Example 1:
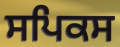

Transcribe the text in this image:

ਸਪਿਕਸ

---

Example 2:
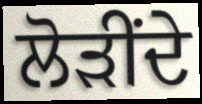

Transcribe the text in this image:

ਲੋੜੀਂਦੇ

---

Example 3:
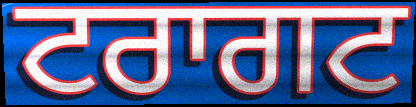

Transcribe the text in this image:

ਟਰਾਗਟ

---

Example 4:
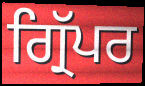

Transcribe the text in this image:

ਗ੍ਰਿੱਪਰ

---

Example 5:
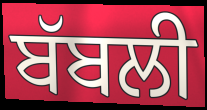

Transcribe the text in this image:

ਬੱਬਲੀ